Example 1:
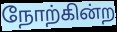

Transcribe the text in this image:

நோற்கின்ற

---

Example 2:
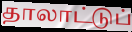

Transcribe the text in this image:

தாலாட்டுப்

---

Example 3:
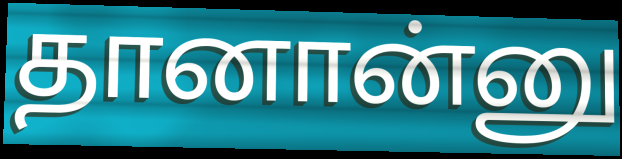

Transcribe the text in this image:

தானான்னு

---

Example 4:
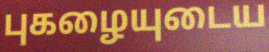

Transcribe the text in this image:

புகழையுடைய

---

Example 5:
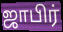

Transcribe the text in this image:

ஜாபிர்